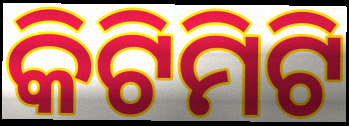
କିଟିମିଟି